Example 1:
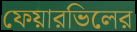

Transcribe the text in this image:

ফেয়ারভিলের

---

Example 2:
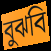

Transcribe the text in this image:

বুঝবি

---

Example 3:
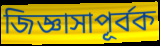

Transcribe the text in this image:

জিজ্ঞাসাপূর্বক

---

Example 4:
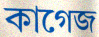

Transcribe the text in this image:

কাগেজ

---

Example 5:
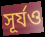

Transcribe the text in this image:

সূর্যও